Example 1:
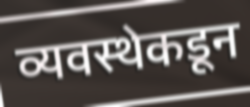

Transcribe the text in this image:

व्यवस्थेकडून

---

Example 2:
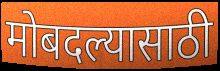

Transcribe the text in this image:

मोबदल्यासाठी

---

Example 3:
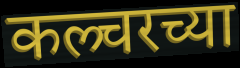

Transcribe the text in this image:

कल्चरच्या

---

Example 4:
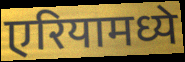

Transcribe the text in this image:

एरियामध्ये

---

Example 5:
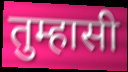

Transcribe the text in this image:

तुम्हासी